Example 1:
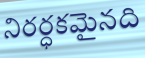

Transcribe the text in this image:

నిరర్ధకమైనది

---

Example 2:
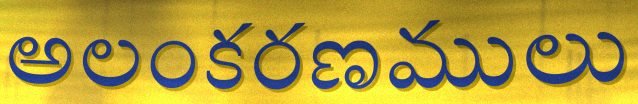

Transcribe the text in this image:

అలంకరణములు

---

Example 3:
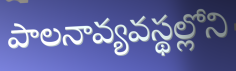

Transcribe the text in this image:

పాలనావ్యవస్థల్లోని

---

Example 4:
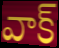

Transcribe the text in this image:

వాక్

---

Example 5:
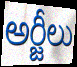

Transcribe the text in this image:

అర్జీలు